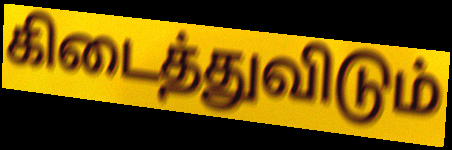
கிடைத்துவிடும்